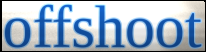
offshoot